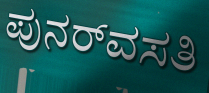
ಪುನರ್‌ವಸತಿ